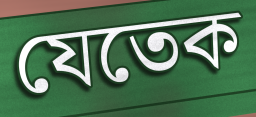
যেতেক